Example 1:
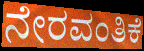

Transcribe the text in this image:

ನೇರವಂತಿಕೆ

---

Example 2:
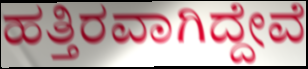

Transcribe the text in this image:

ಹತ್ತಿರವಾಗಿದ್ದೇವೆ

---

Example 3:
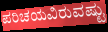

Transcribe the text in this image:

ಪರಿಚಯವಿರುವಷ್ಟು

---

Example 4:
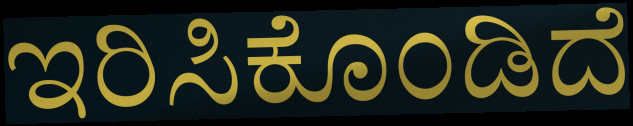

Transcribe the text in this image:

ಇರಿಸಿಕೊಂಡಿದೆ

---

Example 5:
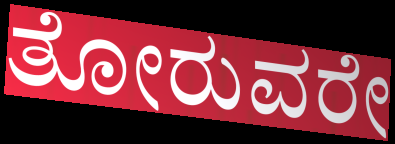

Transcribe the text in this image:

ತೋರುವರೇ